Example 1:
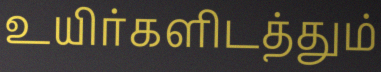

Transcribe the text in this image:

உயிர்களிடத்தும்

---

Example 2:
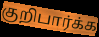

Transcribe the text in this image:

குறிபார்க்க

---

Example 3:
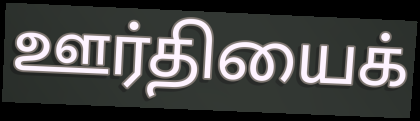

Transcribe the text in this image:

ஊர்தியைக்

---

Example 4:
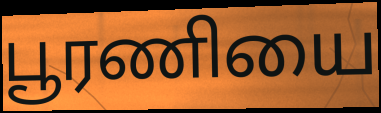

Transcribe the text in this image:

பூரணியை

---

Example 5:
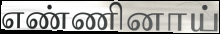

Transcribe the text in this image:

எண்ணினாய்